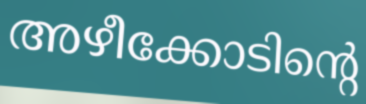
അഴീക്കോടിന്റെ